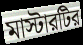
মাস্টারটির